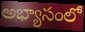
అభ్యాసంలో